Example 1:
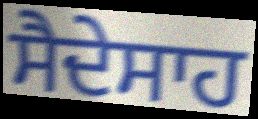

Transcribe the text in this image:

ਸੈਦੇਸਾਹ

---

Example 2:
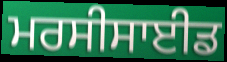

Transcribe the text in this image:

ਮਰਸੀਸਾਈਡ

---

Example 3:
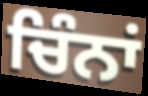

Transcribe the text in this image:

ਚਿੰਨਾਂ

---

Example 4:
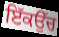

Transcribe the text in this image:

ਇੱਕਉੱਚ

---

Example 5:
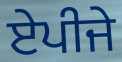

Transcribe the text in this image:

ਏਪੀਜੇ